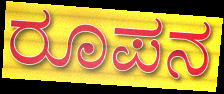
ರೂಪನ